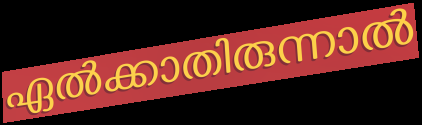
ഏൽക്കാതിരുന്നാൽ